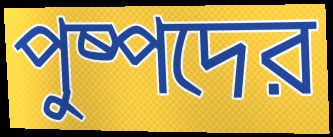
পুষ্পদের